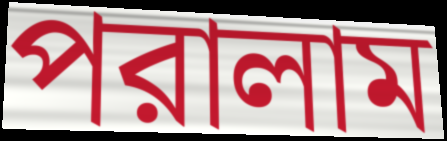
পরালাম